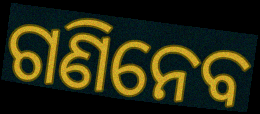
ଗଣିନେବ